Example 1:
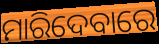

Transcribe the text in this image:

ମାରିଦେବାରେ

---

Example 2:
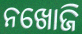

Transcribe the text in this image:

ନଖୋଜି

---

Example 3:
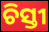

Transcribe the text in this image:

ଚିସ୍ତୀ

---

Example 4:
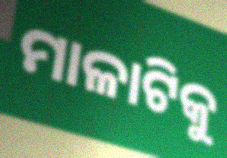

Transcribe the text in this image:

ମାଳାଟିକୁ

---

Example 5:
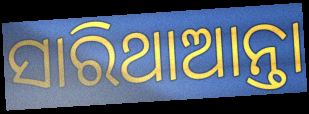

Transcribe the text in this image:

ସାରିଥାଆନ୍ତା